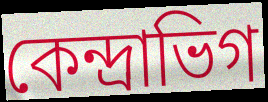
কেন্দ্রাভিগ